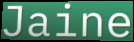
Jaine